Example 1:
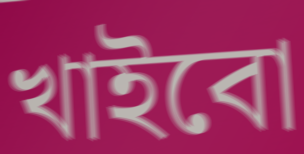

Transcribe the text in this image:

খাইবো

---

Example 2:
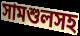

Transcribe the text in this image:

সামশুলসহ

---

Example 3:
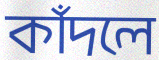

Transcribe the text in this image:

কাঁদলে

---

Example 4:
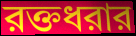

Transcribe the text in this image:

রক্তধরার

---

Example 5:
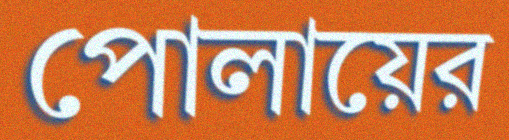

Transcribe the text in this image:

পোলায়ের